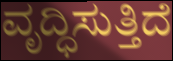
ವೃದ್ಧಿಸುತ್ತಿದೆ